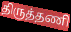
திருத்தணி